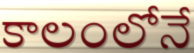
కాలంలోనే